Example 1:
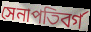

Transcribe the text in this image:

সেনাপতিবর্গ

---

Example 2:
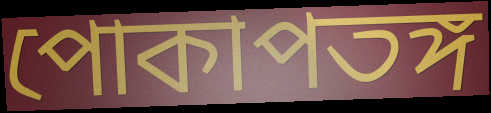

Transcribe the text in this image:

পোকাপতঙ্গ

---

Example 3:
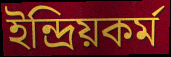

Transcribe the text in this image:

ইন্দ্রিয়কর্ম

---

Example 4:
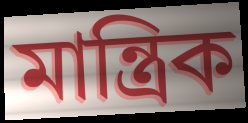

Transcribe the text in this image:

মান্ত্রিক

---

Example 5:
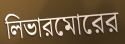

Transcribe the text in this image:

লিভারমোরের